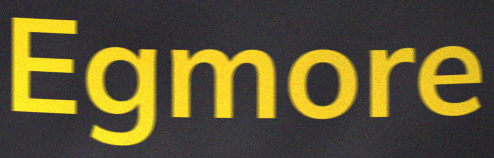
Egmore